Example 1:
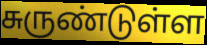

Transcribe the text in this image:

சுருண்டுள்ள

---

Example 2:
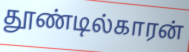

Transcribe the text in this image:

தூண்டில்காரன்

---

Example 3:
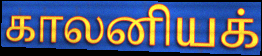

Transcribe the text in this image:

காலனியக்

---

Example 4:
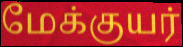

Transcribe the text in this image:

மேக்குயர்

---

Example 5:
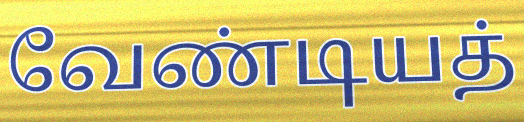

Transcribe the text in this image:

வேண்டியத்